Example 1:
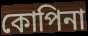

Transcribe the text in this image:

কোপিনা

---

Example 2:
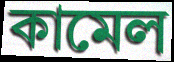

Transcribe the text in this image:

কামেল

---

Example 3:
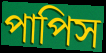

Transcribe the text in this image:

পাপিস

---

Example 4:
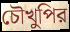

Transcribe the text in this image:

চৌখুপির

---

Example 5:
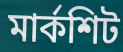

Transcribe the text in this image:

মার্কশিট